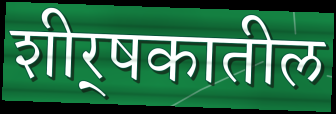
शीर्षकातील